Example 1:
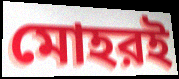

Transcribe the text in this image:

মোহরই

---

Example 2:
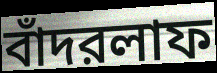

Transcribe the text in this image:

বাঁদরলাফ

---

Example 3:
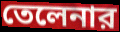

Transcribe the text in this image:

তেলেনার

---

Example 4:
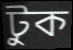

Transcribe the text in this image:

টুক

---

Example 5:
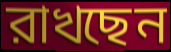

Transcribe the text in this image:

রাখছেন